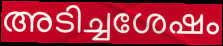
അടിച്ചശേഷം